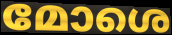
മോശെ